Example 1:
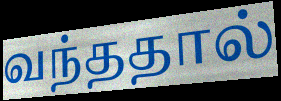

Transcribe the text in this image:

வந்ததால்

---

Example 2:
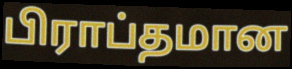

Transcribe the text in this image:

பிராப்தமான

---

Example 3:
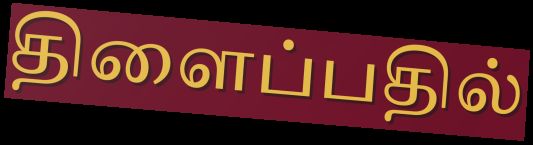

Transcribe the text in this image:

திளைப்பதில்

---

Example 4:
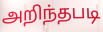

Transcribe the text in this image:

அறிந்தபடி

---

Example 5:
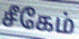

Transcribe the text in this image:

சீகேம்